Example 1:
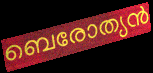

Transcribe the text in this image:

ബെരോത്യൻ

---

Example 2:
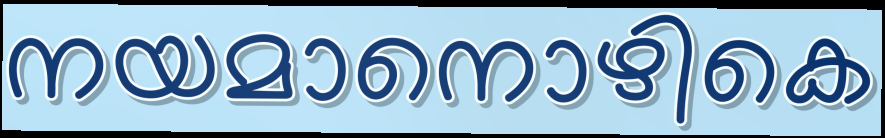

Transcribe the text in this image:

നയമാനൊഴികെ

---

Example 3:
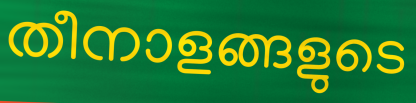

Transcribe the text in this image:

തീനാളങ്ങളുടെ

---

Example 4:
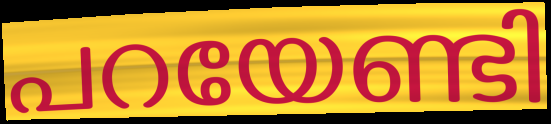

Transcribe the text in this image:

പറയേണ്ടി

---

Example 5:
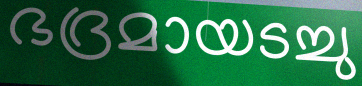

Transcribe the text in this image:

ഭദ്രമായടച്ചു